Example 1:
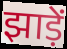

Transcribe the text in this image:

झाड़ें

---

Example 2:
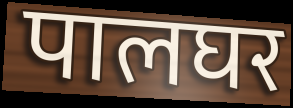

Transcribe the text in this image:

पालघर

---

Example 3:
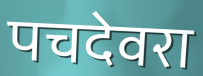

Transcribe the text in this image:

पचदेवरा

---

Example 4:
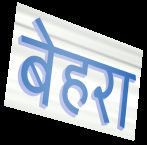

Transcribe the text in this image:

बेहरा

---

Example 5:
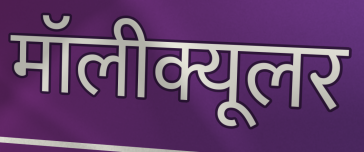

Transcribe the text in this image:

मॉलीक्यूलर